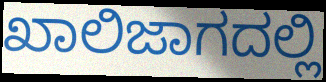
ಖಾಲಿಜಾಗದಲ್ಲಿ